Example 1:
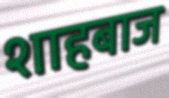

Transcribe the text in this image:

शाहबाज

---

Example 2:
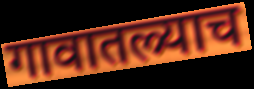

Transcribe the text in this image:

गावातल्याच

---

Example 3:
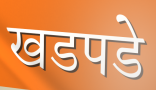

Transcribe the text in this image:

खडपडे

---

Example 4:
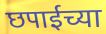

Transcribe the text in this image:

छपाईच्या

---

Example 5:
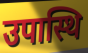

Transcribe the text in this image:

उपास्थि